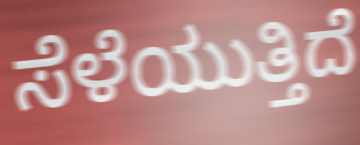
ಸೆಳೆಯುತ್ತಿದೆ